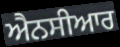
ਐਨਸੀਆਰ